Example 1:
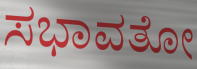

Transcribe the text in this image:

ಸಭಾವತೋ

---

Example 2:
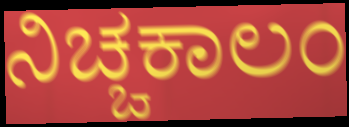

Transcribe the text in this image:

ನಿಚ್ಚಕಾಲಂ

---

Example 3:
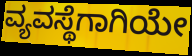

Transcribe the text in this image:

ವ್ಯವಸ್ಥೆಗಾಗಿಯೇ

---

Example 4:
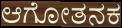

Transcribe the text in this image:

ಆಗೋತನಕ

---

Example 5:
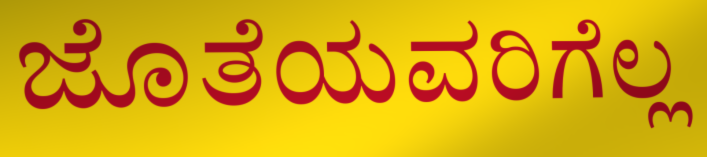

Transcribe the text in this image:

ಜೊತೆಯವರಿಗೆಲ್ಲ